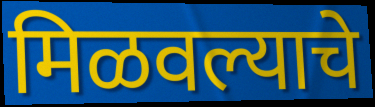
मिळवल्याचे